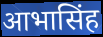
आभासिंह